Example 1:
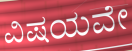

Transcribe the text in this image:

ವಿಷಯವೇ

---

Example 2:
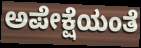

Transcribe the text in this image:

ಅಪೇಕ್ಷೆಯಂತೆ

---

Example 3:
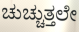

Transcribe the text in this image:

ಚುಚ್ಚುತ್ತಲೇ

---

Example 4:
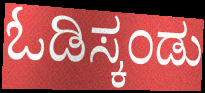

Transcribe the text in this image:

ಓಡಿಸ್ಕಂಡು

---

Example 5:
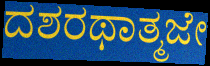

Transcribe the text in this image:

ದಶರಥಾತ್ಮಜೇ